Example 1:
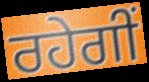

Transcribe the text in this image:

ਰਹੇਗੀਂ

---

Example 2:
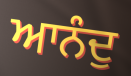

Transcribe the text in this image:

ਆਨੰਦੁ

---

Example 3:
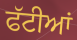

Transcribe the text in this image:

ਫੱਟੀਆਂ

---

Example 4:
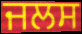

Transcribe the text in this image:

ਜਲਸ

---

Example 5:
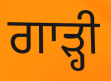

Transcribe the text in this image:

ਗਾੜ੍ਹੀ